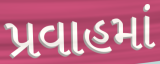
પ્રવાહમાં